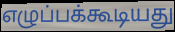
எழுப்பக்கூடியது